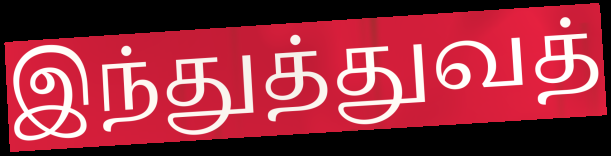
இந்துத்துவத்